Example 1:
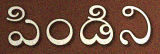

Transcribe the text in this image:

పిండిని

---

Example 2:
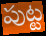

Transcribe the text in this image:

పుట్ట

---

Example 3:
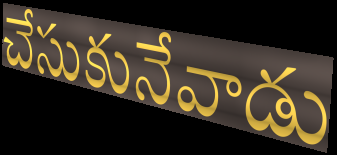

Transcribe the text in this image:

చేసుకునేవాడు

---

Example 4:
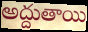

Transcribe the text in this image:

అద్దుతాయి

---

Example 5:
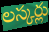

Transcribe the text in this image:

లస్కర్లు